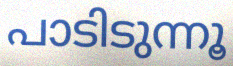
പാടിടുന്നൂ